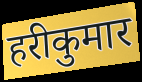
हरीकुमार